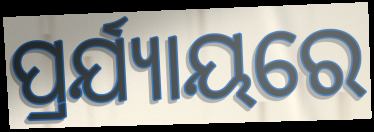
ପ୍ରର୍ଯ୍ୟାୟରେ